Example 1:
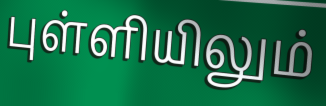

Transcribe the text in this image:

புள்ளியிலும்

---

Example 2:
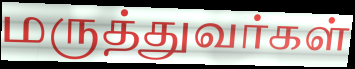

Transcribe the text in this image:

மருத்துவர்கள்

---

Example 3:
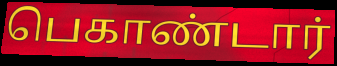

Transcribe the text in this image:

பெகாண்டார்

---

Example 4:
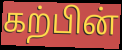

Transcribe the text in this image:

கற்பின்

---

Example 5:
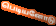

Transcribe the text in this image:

பெடியனோடு